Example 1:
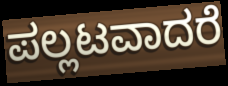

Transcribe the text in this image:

ಪಲ್ಲಟವಾದರೆ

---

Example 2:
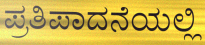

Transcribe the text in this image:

ಪ್ರತಿಪಾದನೆಯಲ್ಲಿ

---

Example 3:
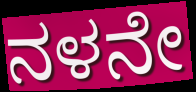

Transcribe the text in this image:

ನಳನೇ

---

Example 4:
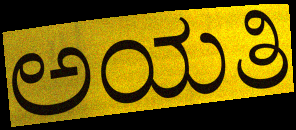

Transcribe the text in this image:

ಅಯತಿ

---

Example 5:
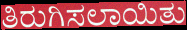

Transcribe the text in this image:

ತಿರುಗಿಸಲಾಯಿತು